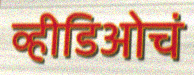
व्हीडिओचं